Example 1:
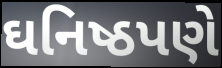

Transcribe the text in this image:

ઘનિષ્ઠપણે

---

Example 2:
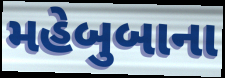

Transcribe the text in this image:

મહેબુબાના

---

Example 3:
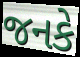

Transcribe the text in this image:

જનકે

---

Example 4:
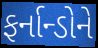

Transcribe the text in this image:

ફર્નાન્ડોને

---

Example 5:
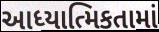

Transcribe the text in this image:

આધ્યાત્મિકતામાં